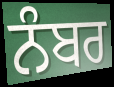
ਨੰਬਰ